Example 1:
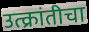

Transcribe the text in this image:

उत्क्रांतीचा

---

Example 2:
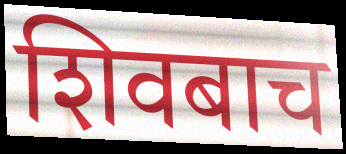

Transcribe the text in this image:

शिवबाच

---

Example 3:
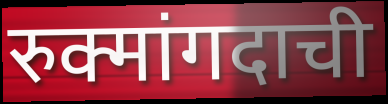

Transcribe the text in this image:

रुक्मांगदाची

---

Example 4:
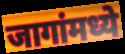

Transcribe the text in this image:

जागांमध्ये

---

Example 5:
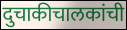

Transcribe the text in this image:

दुचाकीचालकांची